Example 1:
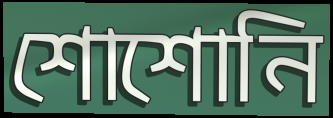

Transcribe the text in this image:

শোশোনি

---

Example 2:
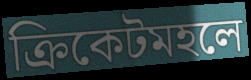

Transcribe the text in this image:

ক্রিকেটমহলে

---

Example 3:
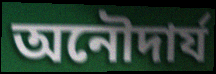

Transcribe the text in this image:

অনৌদার্য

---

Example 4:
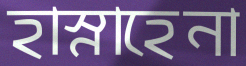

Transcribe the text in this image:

হাস্নাহেনা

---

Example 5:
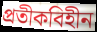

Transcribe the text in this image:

প্রতীকবিহীন